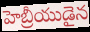
హెబ్రీయుడైన